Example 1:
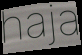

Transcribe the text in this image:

haja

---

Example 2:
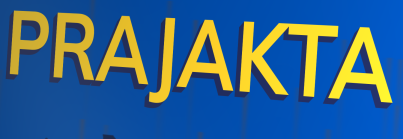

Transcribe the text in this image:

PRAJAKTA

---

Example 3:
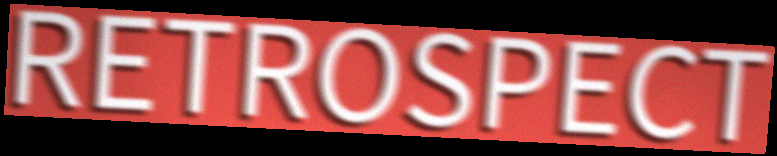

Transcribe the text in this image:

RETROSPECT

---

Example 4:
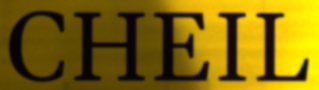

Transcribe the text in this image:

CHEIL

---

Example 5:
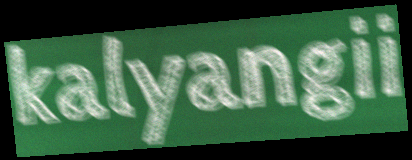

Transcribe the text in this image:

kalyangii